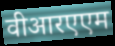
वीआरएएम